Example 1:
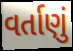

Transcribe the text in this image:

વર્તાણું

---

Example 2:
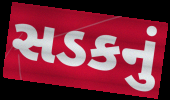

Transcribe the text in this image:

સડકનું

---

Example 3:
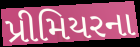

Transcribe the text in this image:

પ્રીમિયરના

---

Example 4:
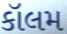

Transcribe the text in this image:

કૉલમ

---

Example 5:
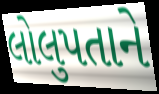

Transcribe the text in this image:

લોલુપતાને